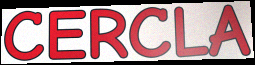
CERCLA